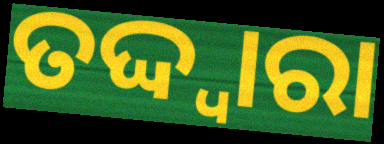
ତଦ୍ଦ୍ଵାରା